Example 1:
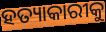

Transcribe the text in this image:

ହତ୍ୟାକାରୀକୁ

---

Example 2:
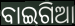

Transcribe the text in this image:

ବାଇଗିଆ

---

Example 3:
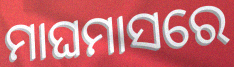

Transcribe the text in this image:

ମାଘମାସରେ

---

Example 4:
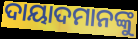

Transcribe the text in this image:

ଦାୟାଦମାନଙ୍କୁ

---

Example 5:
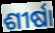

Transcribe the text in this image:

ଶୀର୍ଷା